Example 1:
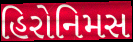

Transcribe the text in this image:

હિરોનિમસ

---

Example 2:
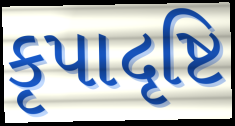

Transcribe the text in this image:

કૃપાદૃષ્ટિ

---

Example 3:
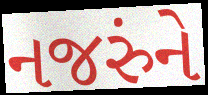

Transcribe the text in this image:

નજરુંને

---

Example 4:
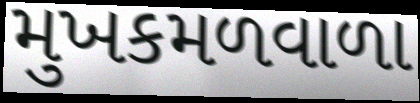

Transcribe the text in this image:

મુખકમળવાળા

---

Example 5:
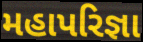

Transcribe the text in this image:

મહાપરિજ્ઞા